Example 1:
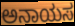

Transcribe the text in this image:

ಅನಾಯಸ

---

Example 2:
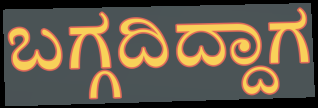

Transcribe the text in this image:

ಬಗ್ಗದಿದ್ದಾಗ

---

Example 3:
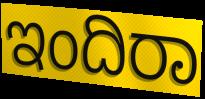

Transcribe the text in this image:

ಇಂದಿರಾ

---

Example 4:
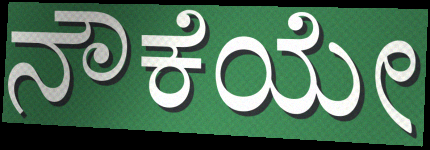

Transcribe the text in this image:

ನೌಕೆಯೇ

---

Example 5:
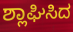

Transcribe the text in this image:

ಶ್ಲಾಘಿಸಿದ